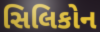
સિલિકોન